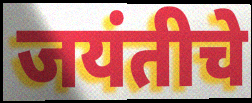
जयंतीचे